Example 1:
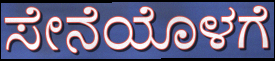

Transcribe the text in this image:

ಸೇನೆಯೊಳಗೆ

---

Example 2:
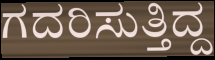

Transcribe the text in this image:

ಗದರಿಸುತ್ತಿದ್ದ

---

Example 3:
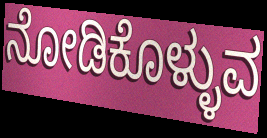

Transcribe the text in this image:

ನೋಡಿಕೊಳ್ಳುವ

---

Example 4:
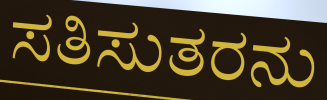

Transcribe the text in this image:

ಸತಿಸುತರನು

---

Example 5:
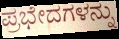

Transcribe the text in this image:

ಪ್ರಭೇದಗಳನ್ನು